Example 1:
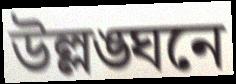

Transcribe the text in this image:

উল্লঙ্ঘনে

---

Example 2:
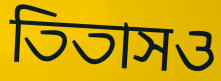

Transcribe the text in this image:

তিতাসও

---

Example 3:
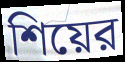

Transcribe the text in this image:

শিয়ের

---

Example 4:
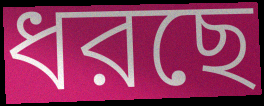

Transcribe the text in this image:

ধরছে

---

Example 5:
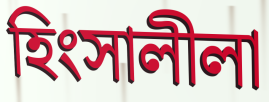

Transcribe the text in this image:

হিংসালীলা